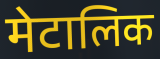
मेटालिक